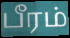
பீரம்